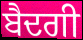
ਬੈਦਗੀ